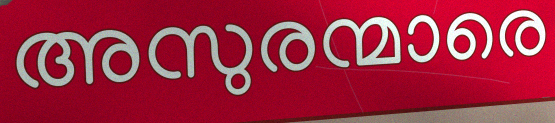
അസുരന്മാരെ